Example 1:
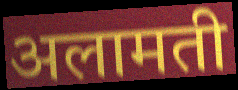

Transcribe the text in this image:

अलामती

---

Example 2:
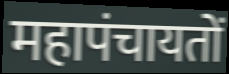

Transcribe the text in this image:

महापंचायतों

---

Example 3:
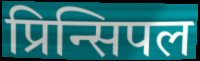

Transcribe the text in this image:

प्रिन्सिपल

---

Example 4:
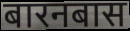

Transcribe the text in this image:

बारनबास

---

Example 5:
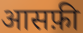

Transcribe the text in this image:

आसफ़ी